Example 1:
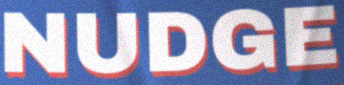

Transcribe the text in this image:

NUDGE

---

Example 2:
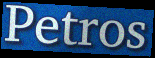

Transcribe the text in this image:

Petros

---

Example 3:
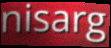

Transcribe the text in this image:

nisarg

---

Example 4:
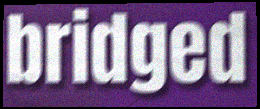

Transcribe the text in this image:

bridged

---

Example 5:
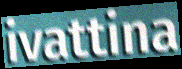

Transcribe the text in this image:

ivattina